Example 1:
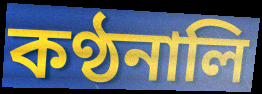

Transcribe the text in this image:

কণ্ঠনালি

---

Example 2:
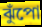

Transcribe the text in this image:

ঝুঁপো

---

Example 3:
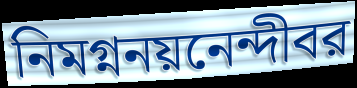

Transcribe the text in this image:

নিমগ্ননয়নেন্দীবর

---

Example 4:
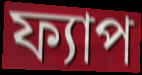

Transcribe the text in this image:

ফ্যাপ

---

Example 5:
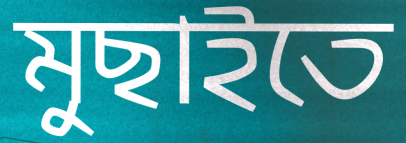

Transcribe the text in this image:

মুছাইতে